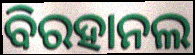
ବିରହାନଲ